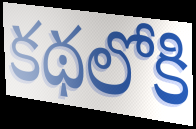
కథలోకి